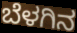
ಬೆಳಗಿನ